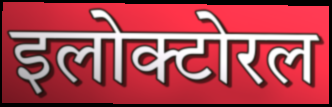
इलोक्टोरल